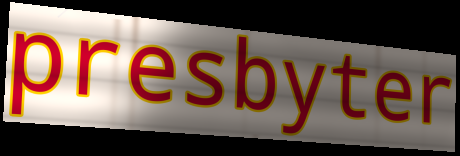
presbyter